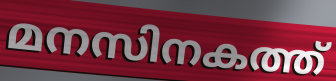
മനസിനകത്ത്